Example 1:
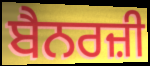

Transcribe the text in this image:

ਬੈਨਰਜ਼ੀ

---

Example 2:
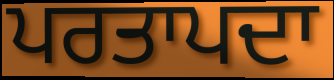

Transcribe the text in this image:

ਪਰਤਾਪਦਾ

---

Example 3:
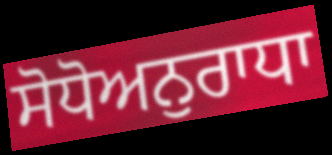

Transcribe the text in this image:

ਸੋਧੋਅਨੁਰਾਧਾ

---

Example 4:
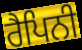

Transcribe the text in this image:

ਰੈਪਿਨੀ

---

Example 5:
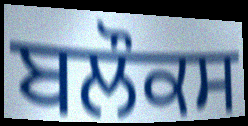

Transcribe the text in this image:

ਬਲੌਕਸ